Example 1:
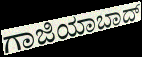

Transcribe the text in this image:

ಗಾಜಿಯಾಬಾದ್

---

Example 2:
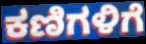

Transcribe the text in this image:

ಕಣಿಗಳಿಗೆ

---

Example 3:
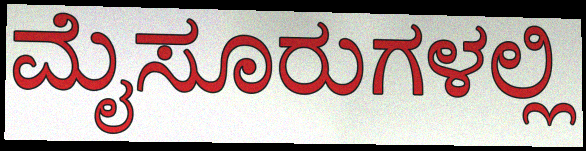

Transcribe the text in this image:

ಮೈಸೂರುಗಳಲ್ಲಿ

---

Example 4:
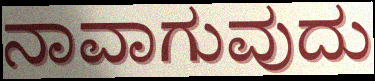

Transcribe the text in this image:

ನಾವಾಗುವುದು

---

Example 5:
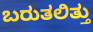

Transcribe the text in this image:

ಬರುತಲಿತ್ತು